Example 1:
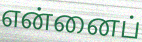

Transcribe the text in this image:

என்னைப்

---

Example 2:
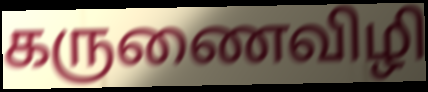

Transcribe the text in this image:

கருணைவிழி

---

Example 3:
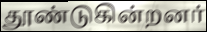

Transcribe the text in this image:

தூண்டுகின்றனர்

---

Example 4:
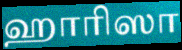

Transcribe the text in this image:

ஹாரிஸா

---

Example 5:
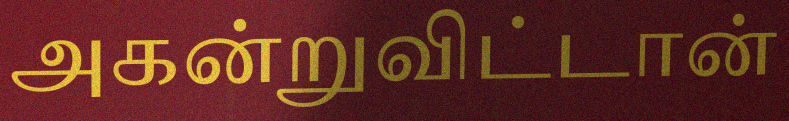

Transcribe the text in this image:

அகன்றுவிட்டான்